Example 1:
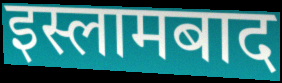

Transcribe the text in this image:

इस्लामबाद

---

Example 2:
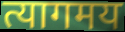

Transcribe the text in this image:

त्यागमय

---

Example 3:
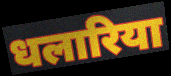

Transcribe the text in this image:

धलारिया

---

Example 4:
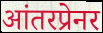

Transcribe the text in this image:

आंतरप्रेनर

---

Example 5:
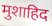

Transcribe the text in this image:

मुशाहिद